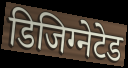
डिजिग्नेटेड